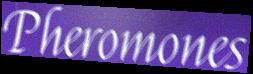
Pheromones